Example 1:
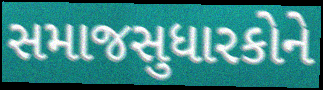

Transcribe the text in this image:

સમાજસુધારકોને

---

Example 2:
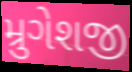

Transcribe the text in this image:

મ્રુગેશજી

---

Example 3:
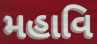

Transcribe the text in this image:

મહાવિ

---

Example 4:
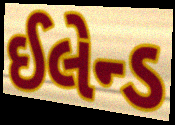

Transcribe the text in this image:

ઈલેન્ડ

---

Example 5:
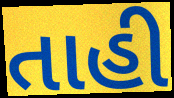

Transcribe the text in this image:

તાહી